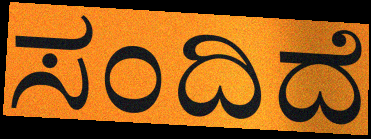
ಸಂದಿದೆ